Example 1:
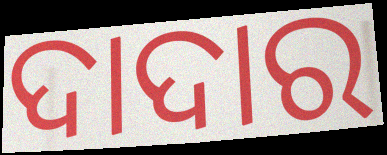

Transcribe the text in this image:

ଦାଦାର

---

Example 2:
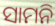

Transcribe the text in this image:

ସାମନି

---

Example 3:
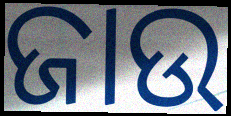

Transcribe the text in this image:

ଜାଉ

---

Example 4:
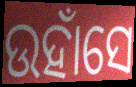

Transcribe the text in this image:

ଉହାଁସେ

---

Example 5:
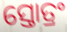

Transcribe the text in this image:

ସ୍ତୋତ୍ରଂ